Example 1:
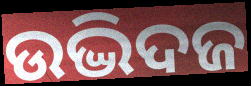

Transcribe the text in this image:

ଉଦ୍ଭିଦଜ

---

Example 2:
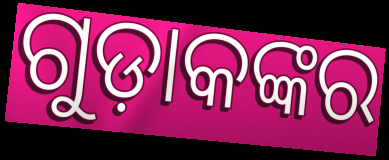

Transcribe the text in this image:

ଗୁଡ଼ାକଙ୍କର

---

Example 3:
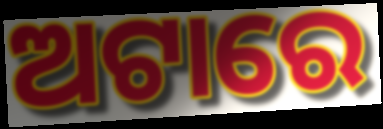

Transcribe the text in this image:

ଅଟାରେ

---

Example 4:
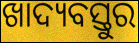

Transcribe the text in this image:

ଖାଦ୍ୟବସ୍ତୁର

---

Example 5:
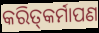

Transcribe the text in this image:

କରିତ୍‌କର୍ମାପଣ